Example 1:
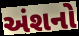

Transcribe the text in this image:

અંશનો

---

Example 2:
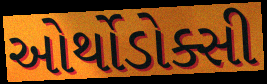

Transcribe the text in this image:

ઓર્થોડોક્સી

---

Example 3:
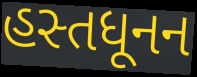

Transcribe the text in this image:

હસ્તધૂનન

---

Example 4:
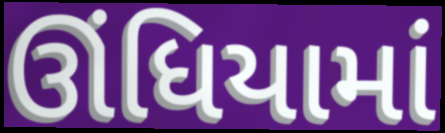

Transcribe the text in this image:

ઊંધિયામાં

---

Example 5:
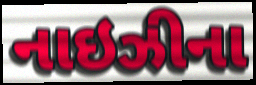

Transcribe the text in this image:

નાઇઝીના